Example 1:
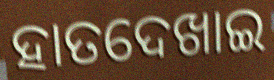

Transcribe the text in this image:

ହାତଦେଖାଇ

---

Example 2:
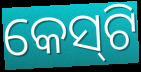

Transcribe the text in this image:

କେସ୍‌ଟି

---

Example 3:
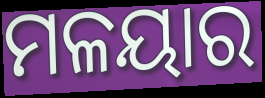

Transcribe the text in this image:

ମଳୟାର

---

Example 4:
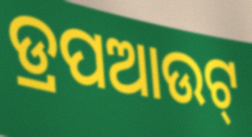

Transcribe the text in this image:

ଡ୍ରପଆଉଟ୍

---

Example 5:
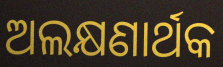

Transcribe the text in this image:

ଅଲକ୍ଷଣାର୍ଥକ